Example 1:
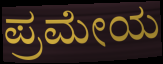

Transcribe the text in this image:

ಪ್ರಮೇಯ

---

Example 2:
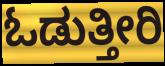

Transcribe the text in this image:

ಓಡುತ್ತೀರಿ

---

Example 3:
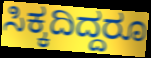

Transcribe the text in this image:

ಸಿಕ್ಕದಿದ್ದರೂ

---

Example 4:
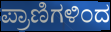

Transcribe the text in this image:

ಪ್ರಾಣಿಗಳಿಂದ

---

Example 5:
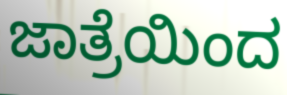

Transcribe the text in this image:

ಜಾತ್ರೆಯಿಂದ